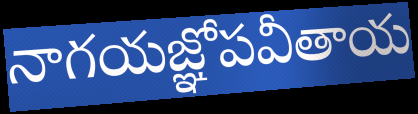
నాగయజ్ఞోపవీతాయ